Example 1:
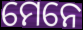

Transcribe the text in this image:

ମେନେ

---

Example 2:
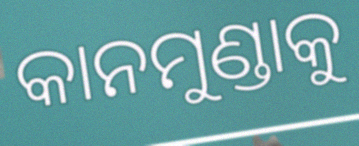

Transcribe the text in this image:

କାନମୁଣ୍ଡାକୁ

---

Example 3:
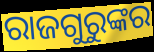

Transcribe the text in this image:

ରାଜଗୁରୁଙ୍କର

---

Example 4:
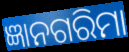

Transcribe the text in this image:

ଜ୍ଞାନଗରିମା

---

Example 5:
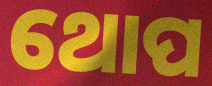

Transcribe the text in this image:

ଥୋପ